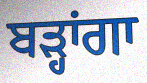
ਬੜ੍ਹਾਂਗਾ